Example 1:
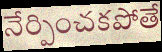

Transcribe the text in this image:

నేర్పించకపోతే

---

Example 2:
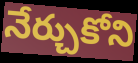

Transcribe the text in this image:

నేర్చుకోని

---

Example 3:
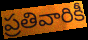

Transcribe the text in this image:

ప్రతివారికీ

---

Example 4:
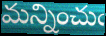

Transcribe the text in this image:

మన్నించుఁ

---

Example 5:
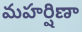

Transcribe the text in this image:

మహర్షిణా